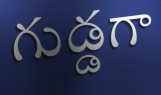
గుడ్డగా